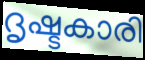
ദൃഷ്ടകാരി